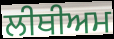
ਲੀਥੀਅਮ